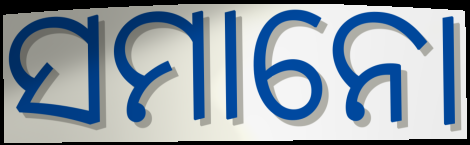
ସମାନୋ